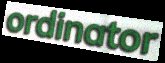
ordinator